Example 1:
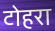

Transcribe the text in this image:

टोहरा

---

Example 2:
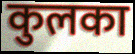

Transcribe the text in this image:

कुलका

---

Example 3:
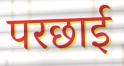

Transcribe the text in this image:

परछाई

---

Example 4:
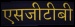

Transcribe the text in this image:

एसजीटीबी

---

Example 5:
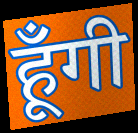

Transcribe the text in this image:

हूँगी